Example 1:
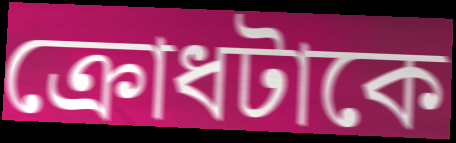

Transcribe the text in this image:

ক্রোধটাকে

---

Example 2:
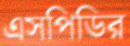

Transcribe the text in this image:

এসপিডির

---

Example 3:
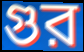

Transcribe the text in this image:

গুর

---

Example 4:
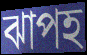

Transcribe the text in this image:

ঝাপহ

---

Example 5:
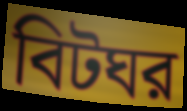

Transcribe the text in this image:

বিটঘর